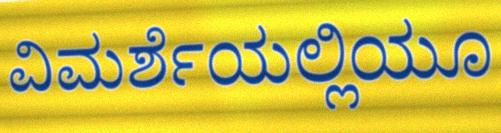
ವಿಮರ್ಶೆಯಲ್ಲಿಯೂ